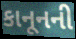
કાનૂનની